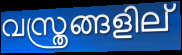
വസ്ത്രങ്ങളില്